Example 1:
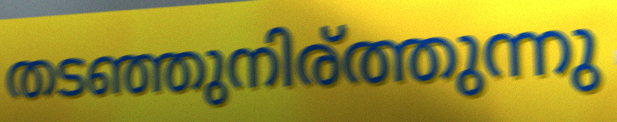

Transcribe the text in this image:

തടഞ്ഞുനിര്ത്തുന്നു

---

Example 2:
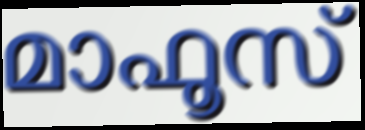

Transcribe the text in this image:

മാഫൂസ്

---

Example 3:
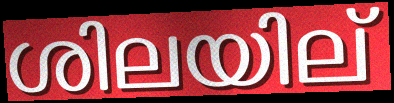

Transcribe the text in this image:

ശിലയില്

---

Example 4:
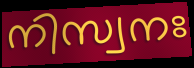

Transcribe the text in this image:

നിസ്വനഃ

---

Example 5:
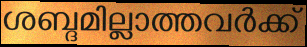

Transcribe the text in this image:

ശബ്ദമില്ലാത്തവർക്ക്